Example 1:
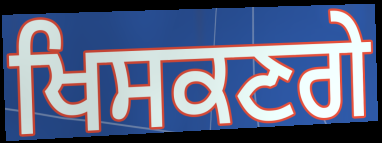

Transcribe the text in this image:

ਖਿਸਕਣਗੇ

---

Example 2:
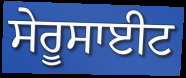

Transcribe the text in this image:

ਸੇਰੂਸਾਈਟ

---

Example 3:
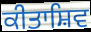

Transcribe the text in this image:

ਕੀਤਾਸ਼ਿਵ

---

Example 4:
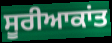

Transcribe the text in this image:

ਸੂਰੀਆਕਾਂਤ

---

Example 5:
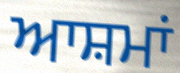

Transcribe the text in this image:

ਆਸ਼ਮਾਂ